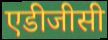
एडीजीसी